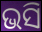
ଭସି